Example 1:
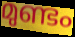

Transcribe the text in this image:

മുണ്ടം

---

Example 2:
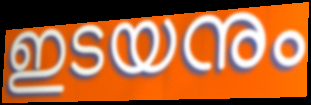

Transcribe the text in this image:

ഇടയനും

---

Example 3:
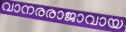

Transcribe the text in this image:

വാനരരാജാവായ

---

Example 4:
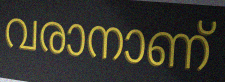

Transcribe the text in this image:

വരാനാണ്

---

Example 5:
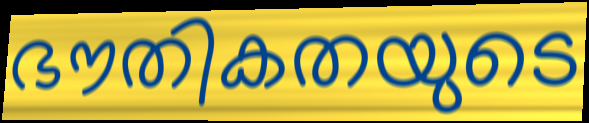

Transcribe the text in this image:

ഭൗതികതയുടെ